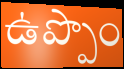
ఉప్పొం